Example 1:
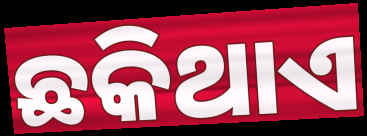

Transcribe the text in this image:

ଛକିଥାଏ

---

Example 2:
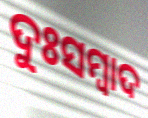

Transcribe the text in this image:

ଦୁଃସମ୍ବାଦ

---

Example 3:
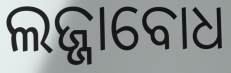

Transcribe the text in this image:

ଲଜ୍ଜାବୋଧ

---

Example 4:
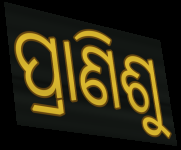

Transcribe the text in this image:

ପ୍ରାଣିଶୁ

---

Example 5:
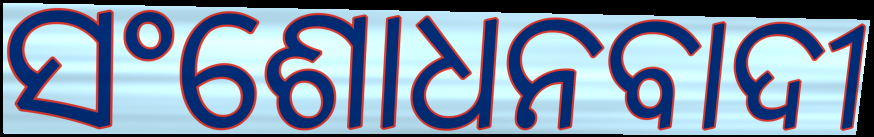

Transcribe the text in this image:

ସଂଶୋଧନବାଦୀ